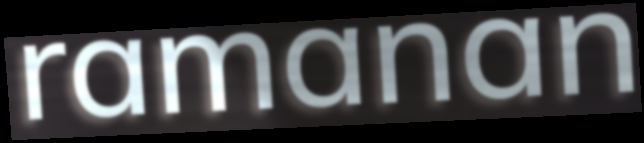
ramanan